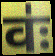
वः॑